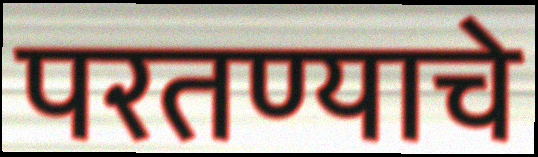
परतण्याचे